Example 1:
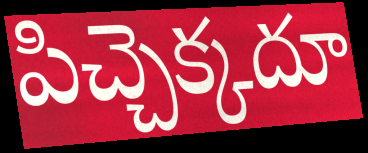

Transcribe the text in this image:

పిచ్చెక్కదూ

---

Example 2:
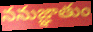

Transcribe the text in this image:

ననుజ్ఞాతుం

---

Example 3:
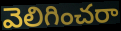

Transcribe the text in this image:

వెలిగించరా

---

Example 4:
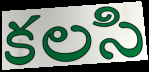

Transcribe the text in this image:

కలసి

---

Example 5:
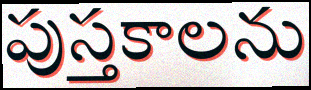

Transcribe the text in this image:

పుస్తకాలను